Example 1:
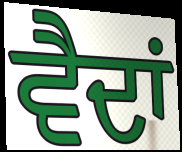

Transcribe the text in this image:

ਵੈਦਾਂ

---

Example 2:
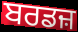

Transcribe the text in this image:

ਬਰਡਜ਼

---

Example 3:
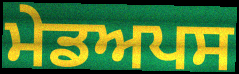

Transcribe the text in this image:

ਮੇਡਅਪਸ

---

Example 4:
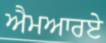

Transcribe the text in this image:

ਐਮਆਰਏ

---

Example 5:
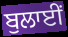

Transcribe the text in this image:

ਬੁਲਾਈਂ